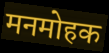
मनमोहक